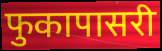
फुकापासरी